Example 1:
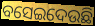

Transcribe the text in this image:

ବସେଇଦେଉଛି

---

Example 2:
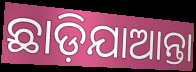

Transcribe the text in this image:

ଛାଡ଼ିଯାଆନ୍ତା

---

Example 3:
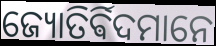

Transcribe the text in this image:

ଜ୍ୟୋତିର୍ଵିଦମାନେ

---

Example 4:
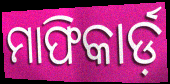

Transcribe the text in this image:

ମାଫିକାର୍ଡ଼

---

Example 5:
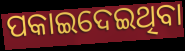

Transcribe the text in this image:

ପକାଇଦେଇଥିବା